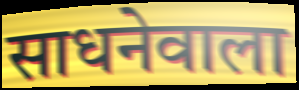
साधनेवाला